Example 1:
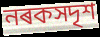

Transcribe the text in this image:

নৰকসদৃশ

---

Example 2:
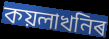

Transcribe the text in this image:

কয়লাখনিৰ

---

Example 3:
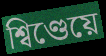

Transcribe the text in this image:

শ্বিণ্ডেয়ে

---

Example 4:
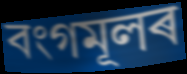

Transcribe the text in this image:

বংগমূলৰ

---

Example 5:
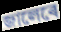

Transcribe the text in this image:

জালেৰে